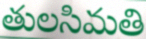
తులసిమతి